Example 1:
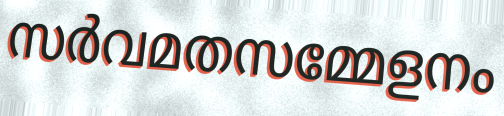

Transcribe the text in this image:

സർവമതസമ്മേളനം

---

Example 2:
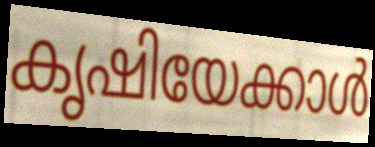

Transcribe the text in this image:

കൃഷിയേക്കാൾ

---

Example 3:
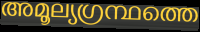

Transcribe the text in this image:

അമൂല്യഗ്രന്ഥത്തെ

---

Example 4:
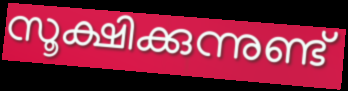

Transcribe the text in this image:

സൂക്ഷിക്കുന്നുണ്ട്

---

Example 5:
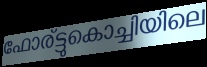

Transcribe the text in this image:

ഫോര്ട്ടുകൊച്ചിയിലെ